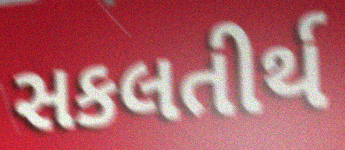
સકલતીર્થ